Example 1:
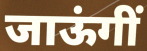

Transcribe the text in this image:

जाऊंगीं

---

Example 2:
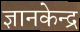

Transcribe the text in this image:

ज्ञानकेन्द्र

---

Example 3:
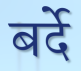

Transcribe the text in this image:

बर्दे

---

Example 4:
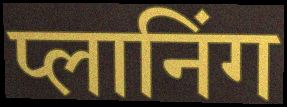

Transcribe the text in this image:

प्लानिंग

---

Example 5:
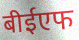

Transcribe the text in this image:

बीईएफ